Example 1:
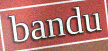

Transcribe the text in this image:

bandu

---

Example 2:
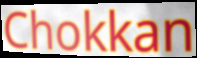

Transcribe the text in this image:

Chokkan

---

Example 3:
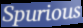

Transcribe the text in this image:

Spurious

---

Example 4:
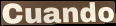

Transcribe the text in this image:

Cuando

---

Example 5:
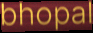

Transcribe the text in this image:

bhopal